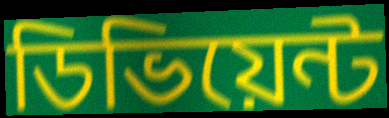
ডিভিয়েন্ট